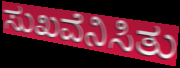
ಸುಖವೆನಿಸಿತು